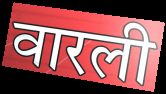
वारली